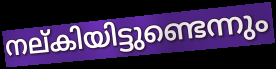
നല്കിയിട്ടുണ്ടെന്നും